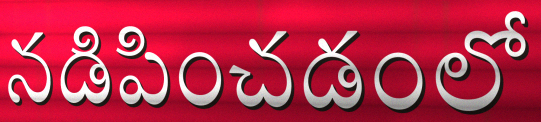
నడిపించడంలో